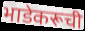
भाडेकरूची